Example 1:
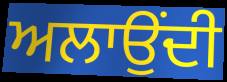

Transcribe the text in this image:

ਅਲਾਉਂਦੀ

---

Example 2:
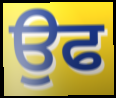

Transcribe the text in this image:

ਉਫ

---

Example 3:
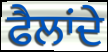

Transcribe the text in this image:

ਫੈਲਾਂਦੇ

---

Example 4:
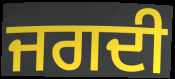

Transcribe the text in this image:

ਜਗਦੀ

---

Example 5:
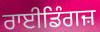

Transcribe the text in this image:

ਰਾਈਡਿੰਗਜ਼